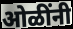
ओळींनी